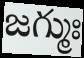
జగ్ముః